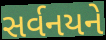
સર્વનયને